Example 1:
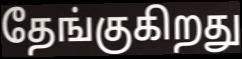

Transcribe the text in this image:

தேங்குகிறது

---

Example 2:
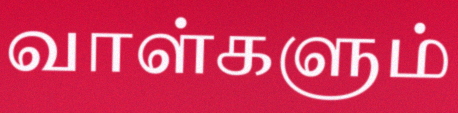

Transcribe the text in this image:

வாள்களும்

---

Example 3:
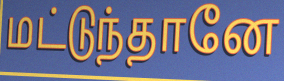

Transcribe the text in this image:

மட்டுந்தானே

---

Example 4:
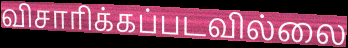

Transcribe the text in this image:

விசாரிக்கப்படவில்லை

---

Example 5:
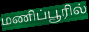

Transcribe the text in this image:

மணிப்பூரில்